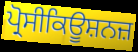
ਪ੍ਰੋਸੀਕਿਊਸ਼ਨਜ਼